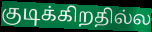
குடிக்கிறதில்ல